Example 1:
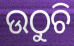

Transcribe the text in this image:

ଉଠୁଚି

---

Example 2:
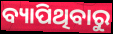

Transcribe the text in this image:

ବ୍ୟାପିଥିବାରୁ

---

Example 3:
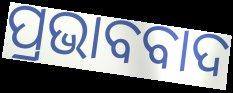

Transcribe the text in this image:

ପ୍ରଭାବବାଦ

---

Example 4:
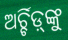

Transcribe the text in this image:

ଅର୍ଚ୍ଚିଡ଼୍‌ଙ୍କୁ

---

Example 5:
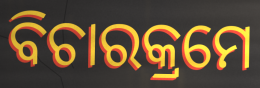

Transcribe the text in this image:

ବିଚାରକ୍ରମେ